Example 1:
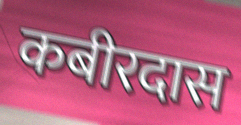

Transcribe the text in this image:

कबीरदास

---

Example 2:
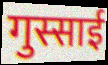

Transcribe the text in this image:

गुस्साई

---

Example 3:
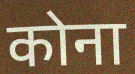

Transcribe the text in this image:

कोना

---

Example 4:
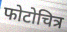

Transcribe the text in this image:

फोटोचित्र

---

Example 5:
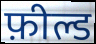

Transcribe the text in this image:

फ़ील्ड